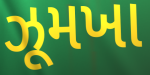
ઝૂમખા